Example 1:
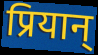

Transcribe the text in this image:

प्रियान्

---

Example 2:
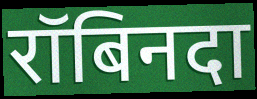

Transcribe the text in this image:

रॉबिनदा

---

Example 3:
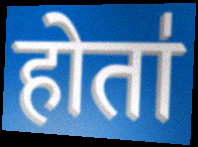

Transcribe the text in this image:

होता॑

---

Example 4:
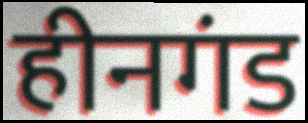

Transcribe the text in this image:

हीनगंड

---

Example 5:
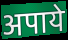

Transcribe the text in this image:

अपाये